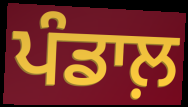
ਪੰਡਾਲ਼